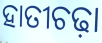
ହାତୀଚଢ଼ା